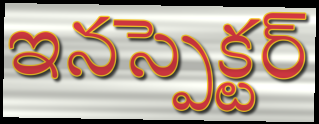
ఇనస్పెక్టర్